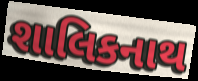
શાલિકનાથ